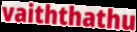
vaiththathu